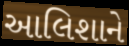
આલિશાને